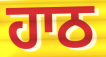
ਹਾਠ